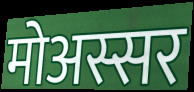
मोअस्सर